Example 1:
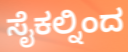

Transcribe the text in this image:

ಸೈಕಲ್ನಿಂದ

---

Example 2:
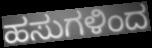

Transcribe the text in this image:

ಹಸುಗಳಿಂದ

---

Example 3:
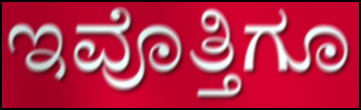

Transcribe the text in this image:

ಇವೊತ್ತಿಗೂ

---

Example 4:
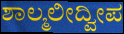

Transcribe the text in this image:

ಶಾಲ್ಮಲೀದ್ವೀಪ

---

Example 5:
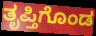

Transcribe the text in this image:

ತೃಪ್ತಿಗೊಂಡ